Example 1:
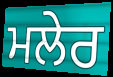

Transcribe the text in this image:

ਮਲੇਰ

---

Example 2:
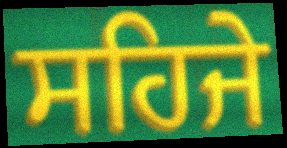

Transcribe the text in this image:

ਸਹਿਜੇ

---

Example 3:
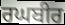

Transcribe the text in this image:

ਰਘਬੀਰ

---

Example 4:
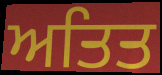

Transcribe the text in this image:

ਅਤਿਤ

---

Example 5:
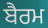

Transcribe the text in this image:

ਬੈਰਮ